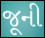
જૂની